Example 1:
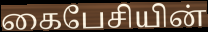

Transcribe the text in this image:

கைபேசியின்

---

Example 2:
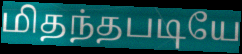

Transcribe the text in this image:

மிதந்தபடியே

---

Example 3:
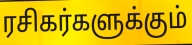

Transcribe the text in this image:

ரசிகர்களுக்கும்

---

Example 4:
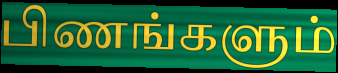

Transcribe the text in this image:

பிணங்களும்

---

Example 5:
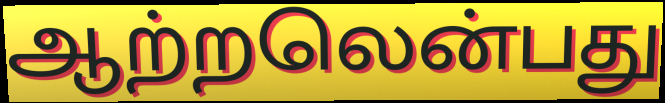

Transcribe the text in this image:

ஆற்றலென்பது